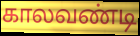
காலவண்டி